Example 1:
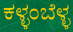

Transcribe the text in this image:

ಕಳ್ಳಂಬೆಳ್ಳ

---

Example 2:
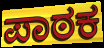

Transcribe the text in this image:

ಪಾಠಕ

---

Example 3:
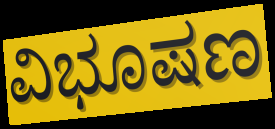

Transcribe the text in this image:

ವಿಭೂಷಣ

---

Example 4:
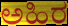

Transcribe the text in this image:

ಅಹಿರ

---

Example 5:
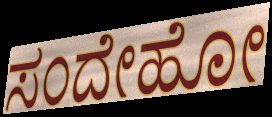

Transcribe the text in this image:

ಸಂದೇಹೋ